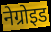
नेग्रोइड